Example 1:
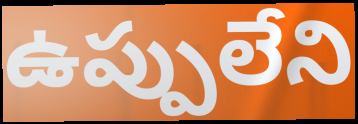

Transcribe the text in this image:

ఉప్పులేని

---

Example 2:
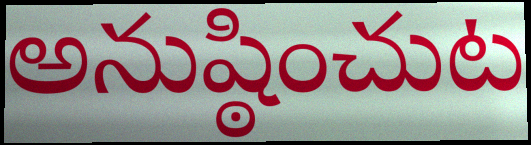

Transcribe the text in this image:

అనుష్ఠించుట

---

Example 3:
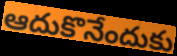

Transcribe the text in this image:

ఆదుకొనేందుకు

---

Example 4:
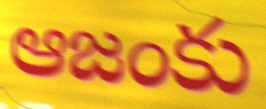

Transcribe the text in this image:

ఆజంకు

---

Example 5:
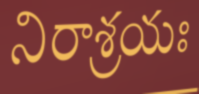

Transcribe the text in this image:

నిరాశ్రయః